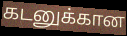
கடனுக்கான